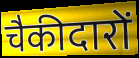
चैकीदारों